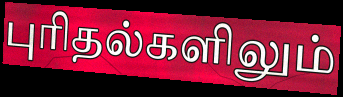
புரிதல்களிலும்